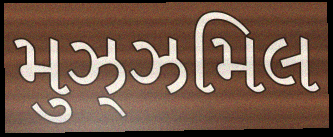
મુઝ્ઝમિલ